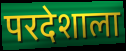
परदेशाला